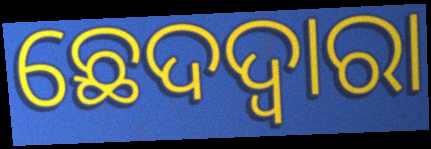
ଛେଦଦ୍ୱାରା